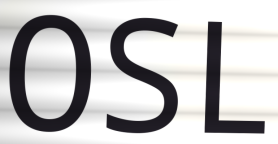
OSL